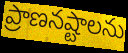
ప్రాణనష్టాలను